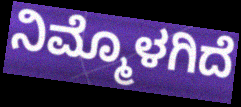
ನಿಮ್ಮೊಳಗಿದೆ